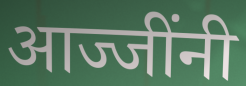
आज्जींनी